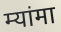
म्यांमा